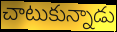
చాటుకున్నాడు